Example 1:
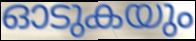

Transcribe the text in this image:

ഓടുകയും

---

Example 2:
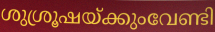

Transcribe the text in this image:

ശുശ്രൂഷയ്ക്കുംവേണ്ടി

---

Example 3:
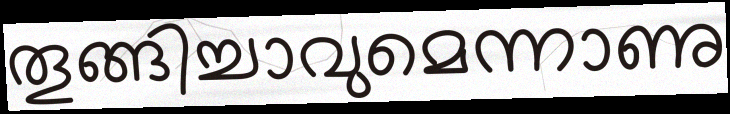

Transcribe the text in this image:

തൂങ്ങിച്ചാവുമെന്നാണു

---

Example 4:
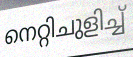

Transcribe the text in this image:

നെറ്റിചുളിച്ച്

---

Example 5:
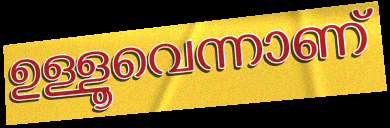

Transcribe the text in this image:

ഉള്ളൂവെന്നാണ്